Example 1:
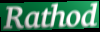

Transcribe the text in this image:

Rathod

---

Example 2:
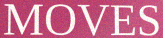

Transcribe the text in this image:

MOVES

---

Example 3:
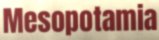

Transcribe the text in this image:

Mesopotamia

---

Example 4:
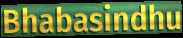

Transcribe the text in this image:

Bhabasindhu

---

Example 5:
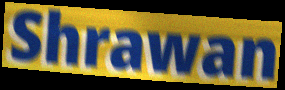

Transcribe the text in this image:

Shrawan